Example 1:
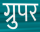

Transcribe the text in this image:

ग्रुपर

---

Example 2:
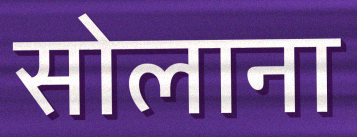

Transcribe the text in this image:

सोलाना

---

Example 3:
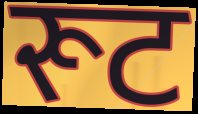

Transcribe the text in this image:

रूट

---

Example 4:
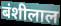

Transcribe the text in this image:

बंशीलाल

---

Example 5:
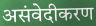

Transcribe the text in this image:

असंवेदीकरण